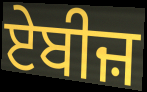
ਏਬੀਜ਼